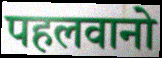
पहलवानो